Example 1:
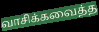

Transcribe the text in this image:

வாசிக்கவைத்த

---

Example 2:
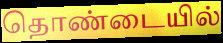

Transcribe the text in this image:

தொண்டையில்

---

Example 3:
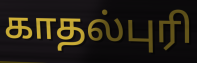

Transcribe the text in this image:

காதல்புரி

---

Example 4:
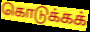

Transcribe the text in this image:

கொடுக்கக்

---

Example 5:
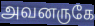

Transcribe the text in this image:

அவனருகே